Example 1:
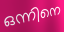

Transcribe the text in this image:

ഒന്നിനെ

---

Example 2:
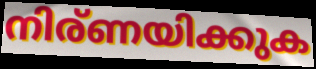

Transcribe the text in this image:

നിര്ണയിക്കുക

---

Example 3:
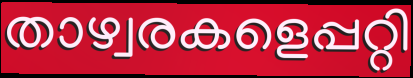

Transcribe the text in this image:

താഴ്വരകളെപ്പറ്റി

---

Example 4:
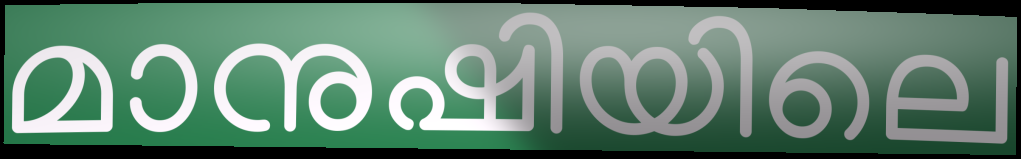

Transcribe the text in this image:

മാനുഷിയിലെ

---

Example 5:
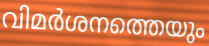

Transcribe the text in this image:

വിമർശനത്തെയും